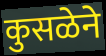
कुसळेने